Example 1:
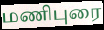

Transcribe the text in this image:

மணிபுரை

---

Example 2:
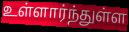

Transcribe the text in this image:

உள்ளார்ந்துள்ள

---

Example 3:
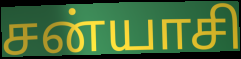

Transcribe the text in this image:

சன்யாசி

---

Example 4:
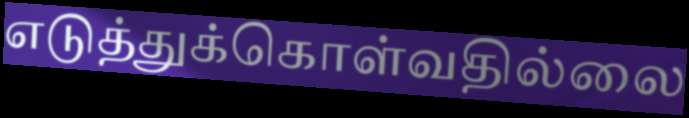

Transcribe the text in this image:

எடுத்துக்கொள்வதில்லை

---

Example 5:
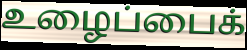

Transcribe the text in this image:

உழைப்பைக்